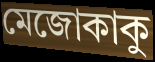
মেজোকাকু